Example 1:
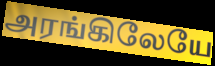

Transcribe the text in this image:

அரங்கிலேயே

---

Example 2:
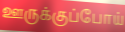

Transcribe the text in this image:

ஊருக்குப்போய்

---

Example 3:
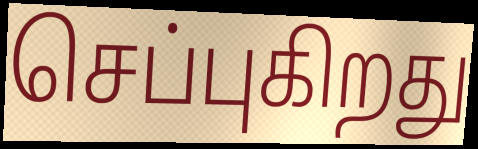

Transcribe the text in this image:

செப்புகிறது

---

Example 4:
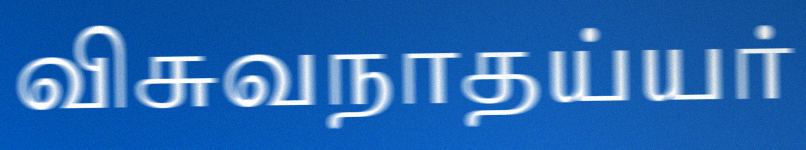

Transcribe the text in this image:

விசுவநாதய்யர்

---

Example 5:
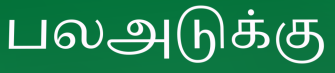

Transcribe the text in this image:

பலஅடுக்கு